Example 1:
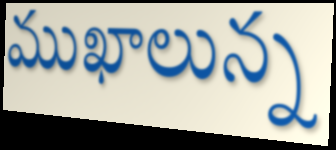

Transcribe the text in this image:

ముఖాలున్న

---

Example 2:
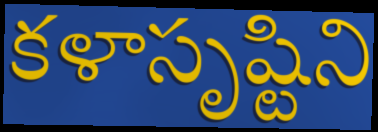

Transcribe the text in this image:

కళాసృష్టిని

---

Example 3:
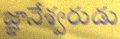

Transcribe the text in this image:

జ్ఞానేశ్వరుడు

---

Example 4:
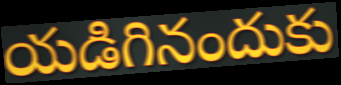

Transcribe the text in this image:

యడిగినందుకు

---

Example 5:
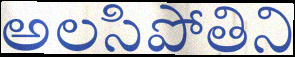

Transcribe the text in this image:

అలసిపోతిని